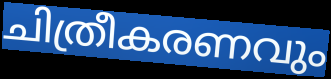
ചിത്രീകരണവും